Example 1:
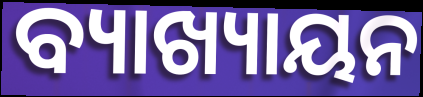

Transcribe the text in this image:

ବ୍ୟାଖ୍ୟାୟନ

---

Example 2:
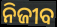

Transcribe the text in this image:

ନିଜୀବ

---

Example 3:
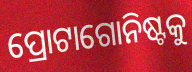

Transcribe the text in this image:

ପ୍ରୋଟାଗୋନିଷ୍ଟକୁ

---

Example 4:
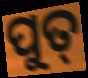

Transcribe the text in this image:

ପୁତ୍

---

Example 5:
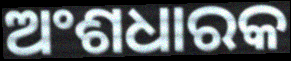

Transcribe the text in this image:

ଅଂଶଧାରକ